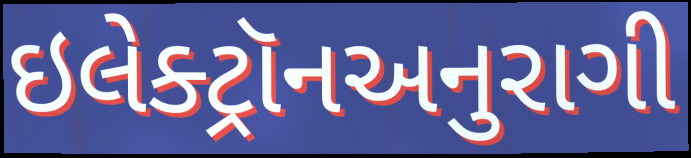
ઇલેક્ટ્રૉનઅનુરાગી